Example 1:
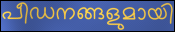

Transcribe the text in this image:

പീഡനങ്ങളുമായി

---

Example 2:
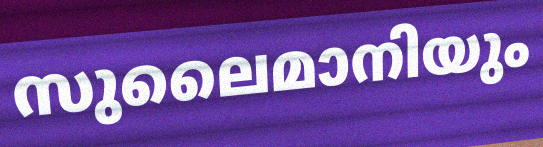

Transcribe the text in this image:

സുലൈമാനിയും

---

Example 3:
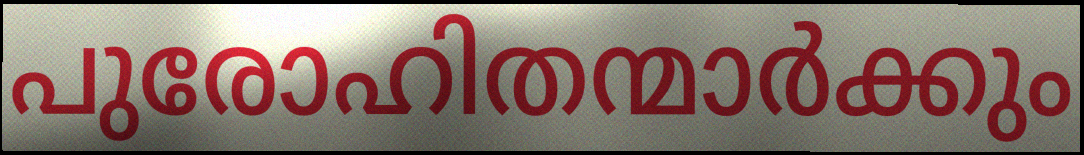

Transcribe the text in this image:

പുരോഹിതന്മാർക്കും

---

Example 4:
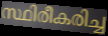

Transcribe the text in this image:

സ്ഥിരീകരിച്ച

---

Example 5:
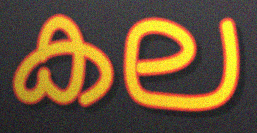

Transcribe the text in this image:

കല